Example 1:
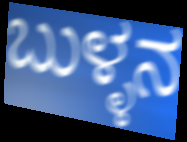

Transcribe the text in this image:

ಬುಳ್ಳನ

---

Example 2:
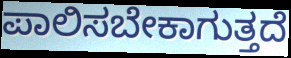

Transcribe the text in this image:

ಪಾಲಿಸಬೇಕಾಗುತ್ತದೆ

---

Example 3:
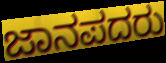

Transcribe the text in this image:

ಜಾನಪದರು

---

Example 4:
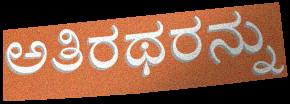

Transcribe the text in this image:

ಅತಿರಥರನ್ನು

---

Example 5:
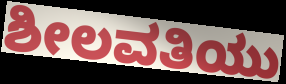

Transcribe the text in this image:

ಶೀಲವತಿಯು